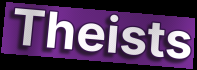
Theists